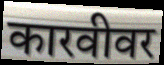
कारवीवर